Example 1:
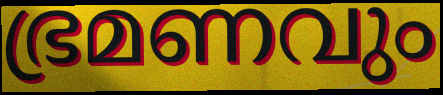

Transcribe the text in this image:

ഭ്രമണവും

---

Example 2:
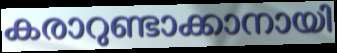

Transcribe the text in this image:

കരാറുണ്ടാക്കാനായി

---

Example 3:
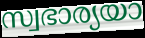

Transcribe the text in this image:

സ്വഭാര്യയാ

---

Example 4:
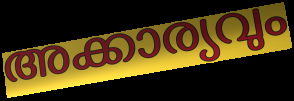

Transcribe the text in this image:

അക്കാര്യവും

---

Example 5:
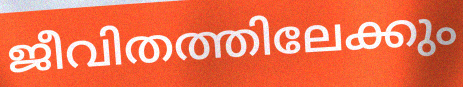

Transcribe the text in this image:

ജീവിതത്തിലേക്കും